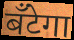
बँटेगा